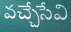
వచ్చేసేవి